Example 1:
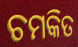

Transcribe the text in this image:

ଚମକିତ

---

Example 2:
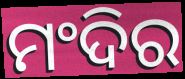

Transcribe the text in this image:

ମଂଦିର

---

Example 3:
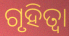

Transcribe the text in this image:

ଗୃହିତ୍ବା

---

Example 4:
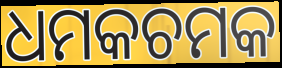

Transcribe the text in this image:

ଧମକଚମକ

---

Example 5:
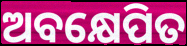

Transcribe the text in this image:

ଅବକ୍ଷେପିତ